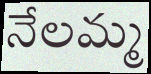
నేలమ్మ